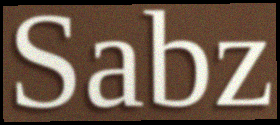
Sabz